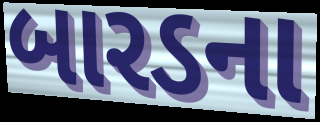
બારડના